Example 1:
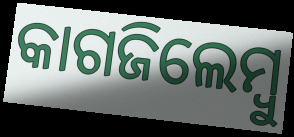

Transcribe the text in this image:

କାଗଜିଲେମ୍ବୁ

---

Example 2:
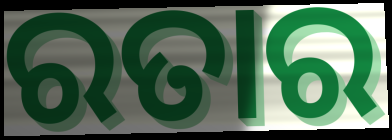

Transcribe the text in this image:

ରତାର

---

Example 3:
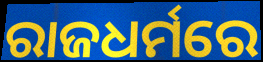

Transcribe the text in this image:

ରାଜଧର୍ମରେ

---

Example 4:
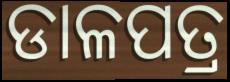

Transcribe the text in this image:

ଡାଳପତ୍ର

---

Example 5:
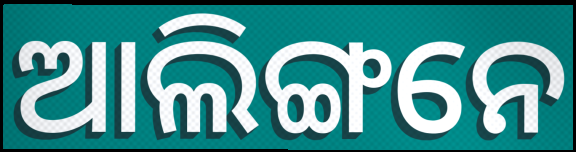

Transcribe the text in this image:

ଆଲିଙ୍ଗନେ